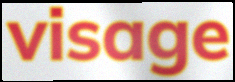
visage